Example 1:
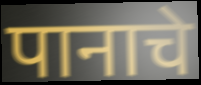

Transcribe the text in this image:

पानाचे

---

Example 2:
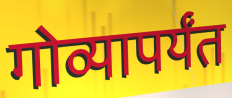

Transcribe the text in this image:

गोव्यापर्यंत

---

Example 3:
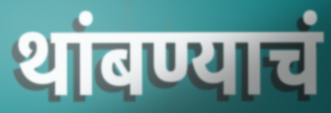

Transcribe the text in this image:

थांबण्याचं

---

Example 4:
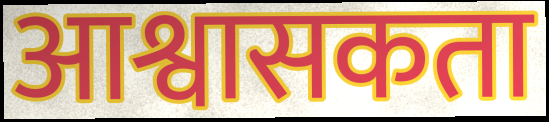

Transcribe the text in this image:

आश्वासकता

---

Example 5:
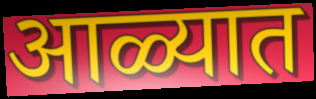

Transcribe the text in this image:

आळ्यात